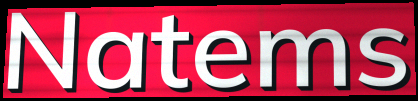
Natems